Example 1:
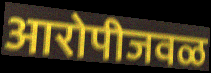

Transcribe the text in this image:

आरोपीजवळ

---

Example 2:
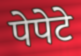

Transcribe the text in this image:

पेपेटे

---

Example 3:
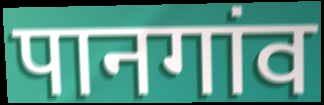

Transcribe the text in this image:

पानगांव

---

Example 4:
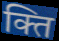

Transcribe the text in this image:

क्ति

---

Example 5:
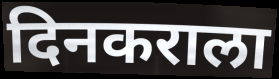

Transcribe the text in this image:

दिनकराला